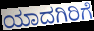
ಯಾದಗಿರಿಗೆ